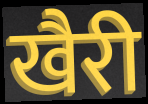
खैरी